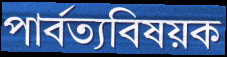
পার্বত্যবিষয়ক